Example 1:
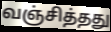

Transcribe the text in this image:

வஞ்சித்தது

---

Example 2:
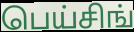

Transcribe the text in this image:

பெய்சிங்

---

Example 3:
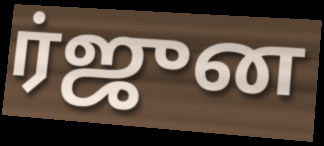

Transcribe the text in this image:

ர்ஜுன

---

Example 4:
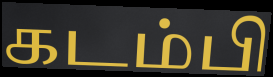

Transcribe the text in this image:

கடம்பி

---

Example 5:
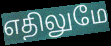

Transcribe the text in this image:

எதிலுமே